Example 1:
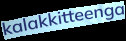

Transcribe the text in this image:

kalakkitteenga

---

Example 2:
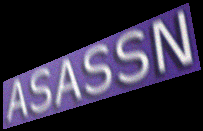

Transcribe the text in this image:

ASASSN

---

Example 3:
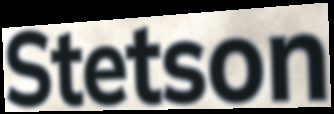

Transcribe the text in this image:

Stetson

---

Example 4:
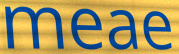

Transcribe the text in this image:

meae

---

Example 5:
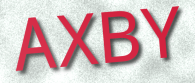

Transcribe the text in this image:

AXBY